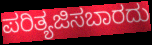
ಪರಿತ್ಯಜಿಸಬಾರದು